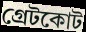
গ্রেটকোট